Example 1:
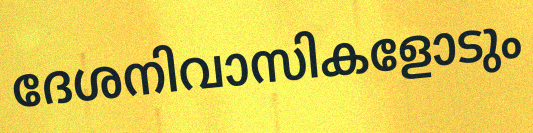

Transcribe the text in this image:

ദേശനിവാസികളോടും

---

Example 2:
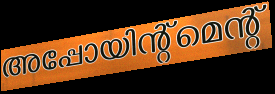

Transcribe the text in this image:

അപ്പോയിന്റ്മെന്റ്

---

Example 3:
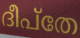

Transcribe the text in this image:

ദീപ്തേ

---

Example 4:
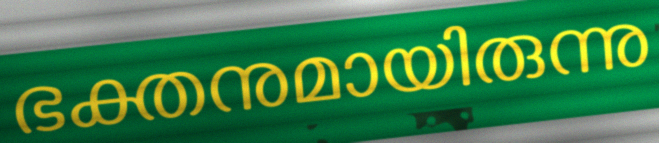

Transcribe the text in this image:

ഭക്തനുമായിരുന്നു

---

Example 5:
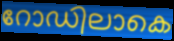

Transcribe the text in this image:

റോഡിലാകെ